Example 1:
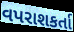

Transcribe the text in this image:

વપરાશકર્તા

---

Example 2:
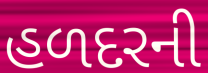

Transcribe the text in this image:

હળદરની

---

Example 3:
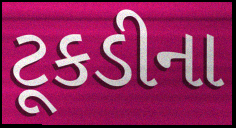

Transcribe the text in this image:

ટૂકડીના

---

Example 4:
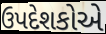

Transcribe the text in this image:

ઉપદેશકોએ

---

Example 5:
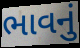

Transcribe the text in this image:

ભાવનું